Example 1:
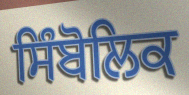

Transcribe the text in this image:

ਸਿੰਬੋਲਿਕ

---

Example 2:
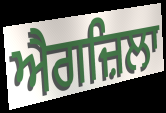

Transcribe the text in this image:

ਐਗਜ਼ਿਲਾ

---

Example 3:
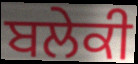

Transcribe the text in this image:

ਬਲੇਕੀ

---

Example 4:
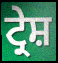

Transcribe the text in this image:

ਟ੍ਰੇਸ਼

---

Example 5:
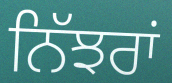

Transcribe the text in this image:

ਨਿੱਝਰਾਂ